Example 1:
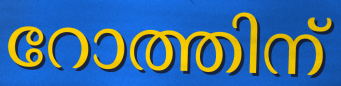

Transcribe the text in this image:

റോത്തിന്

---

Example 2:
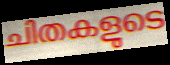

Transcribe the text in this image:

ചിതകളുടെ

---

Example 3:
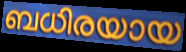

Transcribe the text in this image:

ബധിരയായ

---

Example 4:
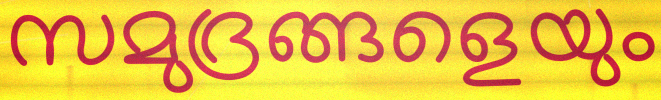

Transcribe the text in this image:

സമുദ്രങ്ങളെയും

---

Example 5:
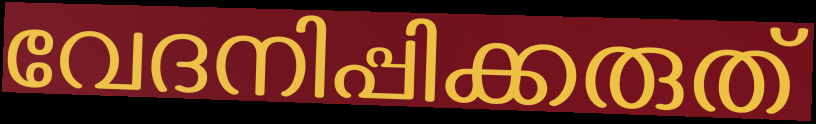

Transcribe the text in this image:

വേദനിപ്പിക്കരുത്